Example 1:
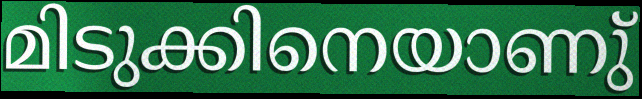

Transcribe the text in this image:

മിടുക്കിനെയാണു്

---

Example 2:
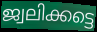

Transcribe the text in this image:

ജ്വലിക്കട്ടെ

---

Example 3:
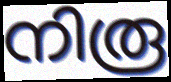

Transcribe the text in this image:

നിരൂ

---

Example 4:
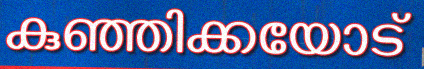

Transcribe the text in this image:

കുഞ്ഞിക്കയോട്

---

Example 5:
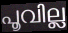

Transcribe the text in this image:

പൂവില്ല